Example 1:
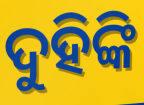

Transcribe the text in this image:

ଦୁହିଙ୍କି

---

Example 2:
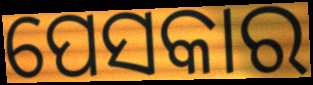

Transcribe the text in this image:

ପେସକାର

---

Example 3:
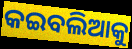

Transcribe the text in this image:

କଇବଲିଆକୁ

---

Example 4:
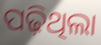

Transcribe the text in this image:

ପଢ଼ିଥିଲା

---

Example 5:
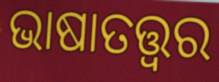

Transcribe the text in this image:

ଭାଷାତତ୍ତ୍ଵର